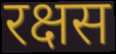
रक्षस